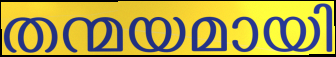
തന്മയമായി